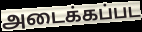
அடைக்கப்பட